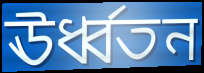
ঊর্ধ্বতন